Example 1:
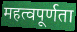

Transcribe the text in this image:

महत्वपूर्णता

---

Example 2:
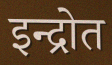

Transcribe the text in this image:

इन्द्रोत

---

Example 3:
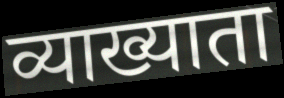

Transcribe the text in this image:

व्याख्याता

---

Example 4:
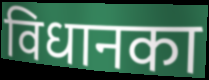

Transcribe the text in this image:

विधानका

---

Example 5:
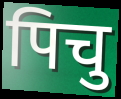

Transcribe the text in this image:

पिचु